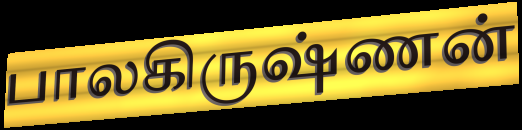
பாலகிருஷ்ணன்